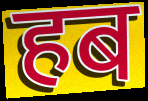
हब